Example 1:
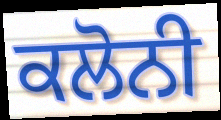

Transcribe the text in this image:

ਕਲੋਨੀ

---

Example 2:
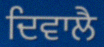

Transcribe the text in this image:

ਦਿਵਾਲੈ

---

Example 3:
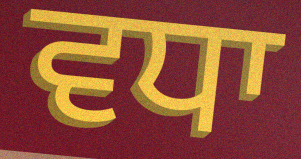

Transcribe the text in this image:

ਵਧਾ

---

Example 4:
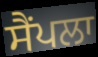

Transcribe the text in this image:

ਸੈਂਪਲਾ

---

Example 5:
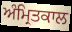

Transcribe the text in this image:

ਅੰਮ੍ਰਿਤਕਾਲ